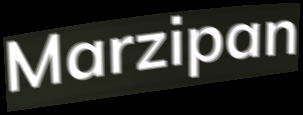
Marzipan